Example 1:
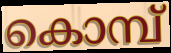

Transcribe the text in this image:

കൊമ്പ്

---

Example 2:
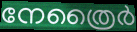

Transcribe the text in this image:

നേത്രൈർ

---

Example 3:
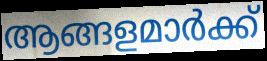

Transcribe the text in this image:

ആങ്ങളമാർക്ക്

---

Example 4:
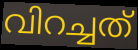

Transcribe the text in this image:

വിറച്ചത്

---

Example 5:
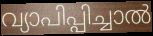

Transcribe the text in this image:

വ്യാപിപ്പിച്ചാൽ